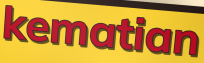
kematian